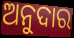
ଅନୁଦାର